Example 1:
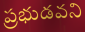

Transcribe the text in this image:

ప్రభుడవని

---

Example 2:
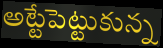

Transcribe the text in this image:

అట్టేపెట్టుకున్న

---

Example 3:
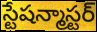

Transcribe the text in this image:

స్టేషన్మాస్టర్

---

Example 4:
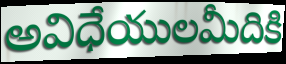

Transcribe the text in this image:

అవిధేయులమీదికి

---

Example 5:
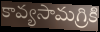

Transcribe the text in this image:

కావ్యసామగ్రికి